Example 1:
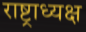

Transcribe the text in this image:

राष्ट्राध्यक्ष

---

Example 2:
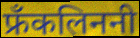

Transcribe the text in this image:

फ्रँकलिननी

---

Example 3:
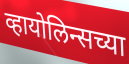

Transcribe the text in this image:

व्हायोलिन्सच्या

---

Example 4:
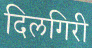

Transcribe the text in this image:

दिलगिरी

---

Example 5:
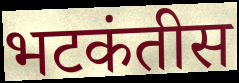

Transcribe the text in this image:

भटकंतीस